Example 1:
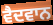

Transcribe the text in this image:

ਵੈਦਵਾਨ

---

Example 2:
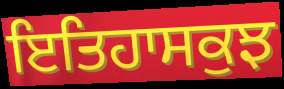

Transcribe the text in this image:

ਇਤਿਹਾਸਕੁਝ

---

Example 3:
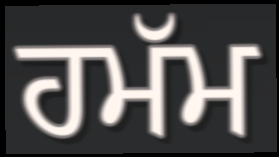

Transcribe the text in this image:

ਹਮੱਮ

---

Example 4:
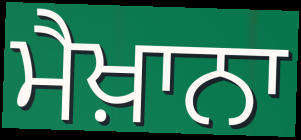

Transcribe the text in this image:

ਮੈਖ਼ਾਨਾ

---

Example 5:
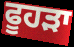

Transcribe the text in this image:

ਫੂਹੜਾ